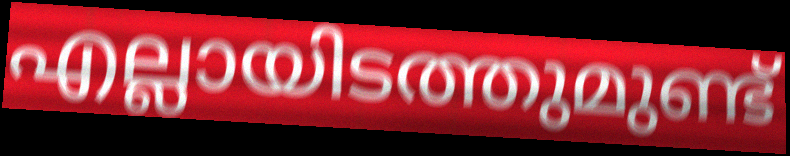
എല്ലായിടത്തുമുണ്ട്